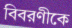
বিবরণীকে